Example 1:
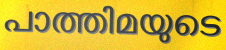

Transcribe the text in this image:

പാത്തിമയുടെ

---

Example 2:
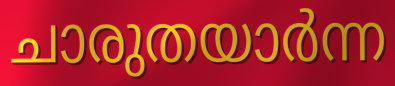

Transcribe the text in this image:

ചാരുതയാർന്ന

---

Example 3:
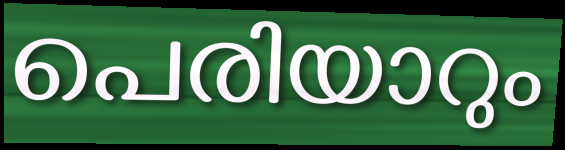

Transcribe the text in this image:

പെരിയാറും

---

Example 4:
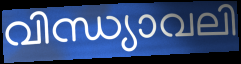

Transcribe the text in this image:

വിന്ധ്യാവലി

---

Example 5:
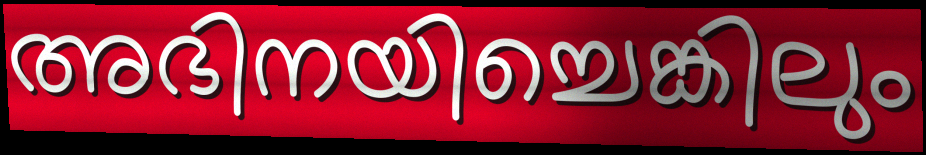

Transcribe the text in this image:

അഭിനയിച്ചെങ്കിലും